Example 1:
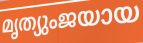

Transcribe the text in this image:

മൃത്യുംജയായ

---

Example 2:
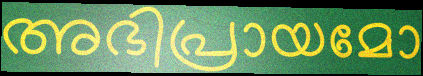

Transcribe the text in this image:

അഭിപ്രായമോ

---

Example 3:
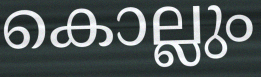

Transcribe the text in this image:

കൊല്ലും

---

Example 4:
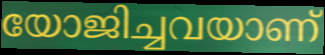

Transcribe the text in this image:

യോജിച്ചവയാണ്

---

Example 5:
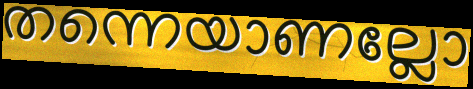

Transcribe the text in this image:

തന്നെയാണല്ലോ